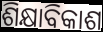
ଶିକ୍ଷାବିକାଶ